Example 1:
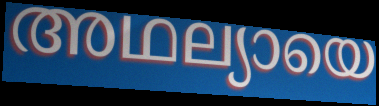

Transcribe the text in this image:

അഥല്യായെ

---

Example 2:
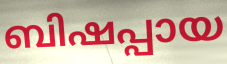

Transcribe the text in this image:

ബിഷപ്പായ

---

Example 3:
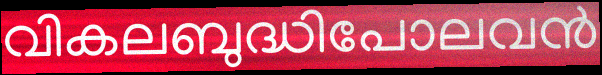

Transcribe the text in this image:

വികലബുദ്ധിപോലവൻ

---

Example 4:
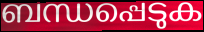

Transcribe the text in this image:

ബന്ധപ്പെടുക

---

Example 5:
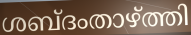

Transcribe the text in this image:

ശബ്ദംതാഴ്ത്തി